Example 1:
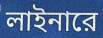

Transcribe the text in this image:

লাইনারে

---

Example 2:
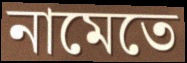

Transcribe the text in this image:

নামেতে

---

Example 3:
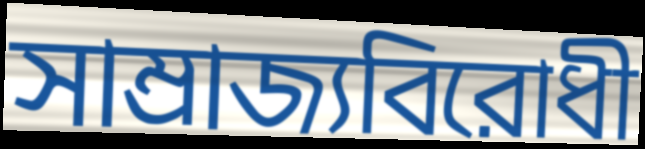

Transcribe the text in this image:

সাম্রাজ্যবিরোধী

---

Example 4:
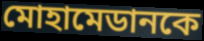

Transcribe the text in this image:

মোহামেডানকে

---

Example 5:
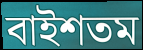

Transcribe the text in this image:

বাইশতম